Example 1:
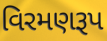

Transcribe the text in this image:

વિરમણરૂપ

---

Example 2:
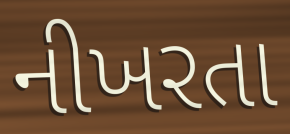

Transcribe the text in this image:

નીખરતા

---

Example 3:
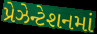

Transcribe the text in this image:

પ્રેઝેન્ટેશનમાં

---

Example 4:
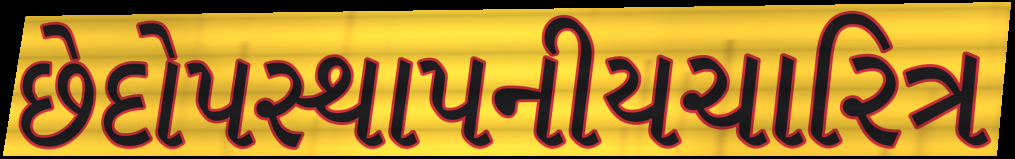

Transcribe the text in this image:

છેદોપસ્થાપનીયચારિત્ર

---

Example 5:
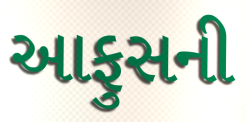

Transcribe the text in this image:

આફુસની